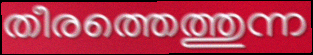
തീരത്തെത്തുന്ന